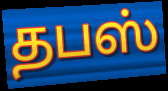
தபஸ்